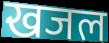
खजल